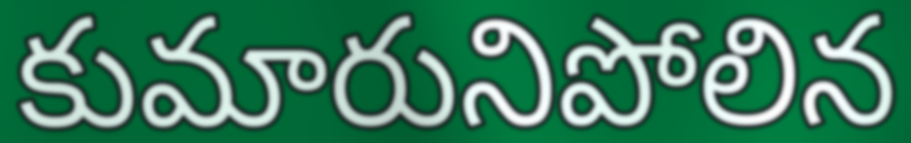
కుమారునిపోలిన